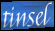
tinsel